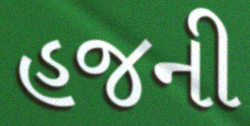
હજની